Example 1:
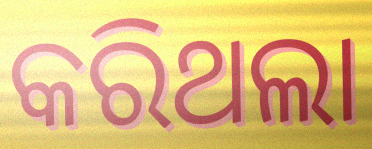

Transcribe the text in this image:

କରିଥଲା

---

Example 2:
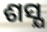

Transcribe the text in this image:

ଶସ୍ଯ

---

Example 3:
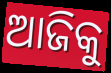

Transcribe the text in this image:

ଆଜିକୁ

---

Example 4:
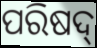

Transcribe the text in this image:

ପରିଷଦ୍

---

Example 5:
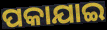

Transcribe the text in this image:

ପକାଯାଇ